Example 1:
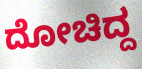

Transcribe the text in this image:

ದೋಚಿದ್ದ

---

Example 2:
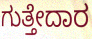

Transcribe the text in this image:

ಗುತ್ತೇದಾರ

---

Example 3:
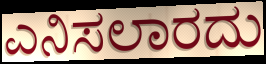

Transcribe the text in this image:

ಎನಿಸಲಾರದು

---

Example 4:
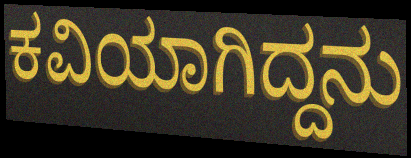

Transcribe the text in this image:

ಕವಿಯಾಗಿದ್ದನು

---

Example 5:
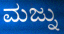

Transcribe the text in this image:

ಮಜ್ನು